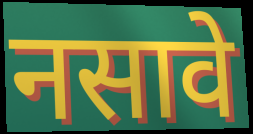
नसावे